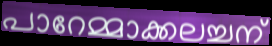
പാറേമ്മാക്കലച്ചന്